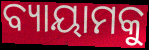
ବ୍ୟାୟାମକୁ